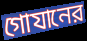
গোযানের